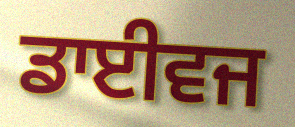
ਡਾਈਵਜ